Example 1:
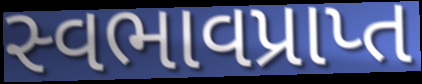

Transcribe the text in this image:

સ્વભાવપ્રાપ્ત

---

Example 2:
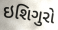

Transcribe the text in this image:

ઇશિગુરો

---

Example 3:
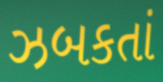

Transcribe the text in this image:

ઝબકતાં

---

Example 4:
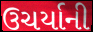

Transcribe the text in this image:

ઉચર્યાની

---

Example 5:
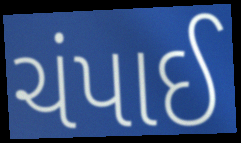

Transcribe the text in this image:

ચંપાઈ